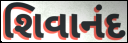
શિવાનંદ